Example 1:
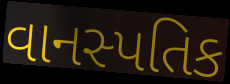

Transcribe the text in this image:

વાનસ્પતિક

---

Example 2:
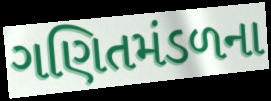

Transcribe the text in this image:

ગણિતમંડળના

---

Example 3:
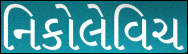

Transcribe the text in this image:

નિકોલેવિચ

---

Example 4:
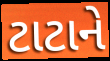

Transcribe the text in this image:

ટાટાને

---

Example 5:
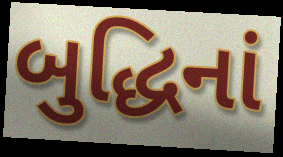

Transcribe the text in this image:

બુદ્ધિનાં